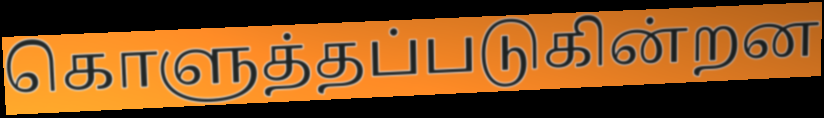
கொளுத்தப்படுகின்றன